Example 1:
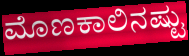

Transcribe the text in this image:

ಮೊಣಕಾಲಿನಷ್ಟು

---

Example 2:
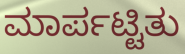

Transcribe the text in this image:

ಮಾರ್ಪಟ್ಟಿತು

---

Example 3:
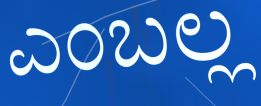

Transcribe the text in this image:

ಎಂಬಲ್ಲ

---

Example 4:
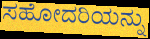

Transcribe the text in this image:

ಸಹೋದರಿಯನ್ನು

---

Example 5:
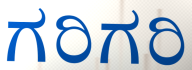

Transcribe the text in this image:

ಗರಿಗರಿ